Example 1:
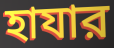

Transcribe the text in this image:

হাযার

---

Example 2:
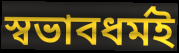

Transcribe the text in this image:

স্বভাবধর্মই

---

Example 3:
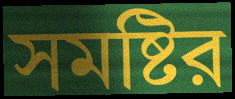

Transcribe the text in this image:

সমষ্টির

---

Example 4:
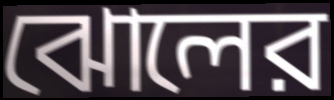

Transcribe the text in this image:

ঝোলের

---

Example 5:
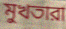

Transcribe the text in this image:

মুখতারা